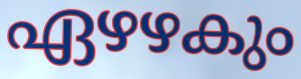
ഏഴഴകും